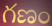
గణం